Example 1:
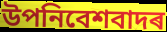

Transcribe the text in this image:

উপনিবেশবাদৰ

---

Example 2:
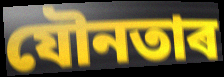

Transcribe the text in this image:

যৌনতাৰ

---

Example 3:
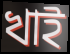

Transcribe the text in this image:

খাই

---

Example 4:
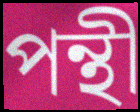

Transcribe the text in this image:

পন্থী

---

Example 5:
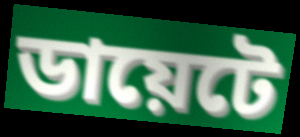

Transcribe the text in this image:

ডায়েটে